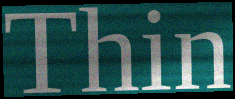
Thin